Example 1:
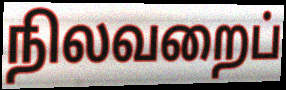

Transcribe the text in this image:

நிலவறைப்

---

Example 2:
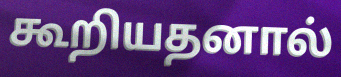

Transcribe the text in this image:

கூறியதனால்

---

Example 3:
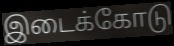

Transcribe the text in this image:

இடைக்கோடு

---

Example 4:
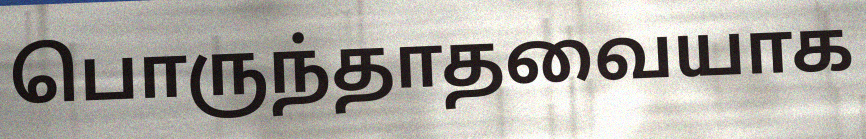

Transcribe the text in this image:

பொருந்தாதவையாக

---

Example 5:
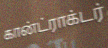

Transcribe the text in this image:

கான்ட்ராக்டர்